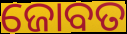
ଜୋବତ